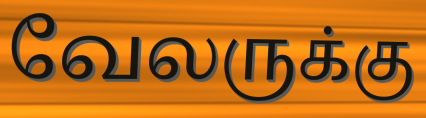
வேலருக்கு